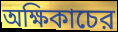
অক্ষিকাচের